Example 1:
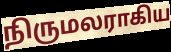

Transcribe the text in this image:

நிருமலராகிய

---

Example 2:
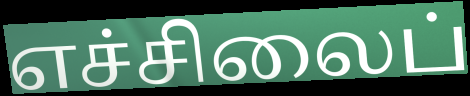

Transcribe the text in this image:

எச்சிலைப்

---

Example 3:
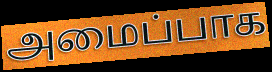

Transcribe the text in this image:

அமைப்பாக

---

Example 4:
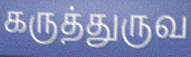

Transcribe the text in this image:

கருத்துருவ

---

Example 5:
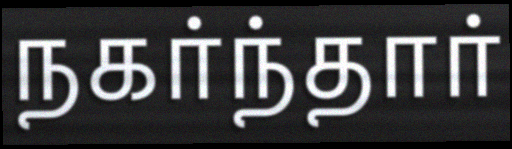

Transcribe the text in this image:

நகர்ந்தார்